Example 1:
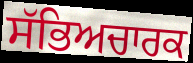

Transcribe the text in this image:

ਸੱਭਿਅਚਾਰਕ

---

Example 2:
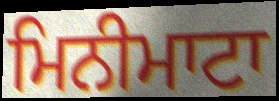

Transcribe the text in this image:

ਮਿਨੀਮਾਟਾ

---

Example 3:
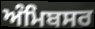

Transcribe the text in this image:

ਅੰਮਿਬਸਰ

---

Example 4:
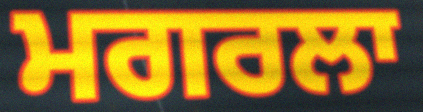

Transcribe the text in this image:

ਮਗਰਲਾ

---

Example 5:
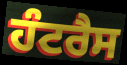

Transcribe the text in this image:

ਹੰਟਰੈਸ